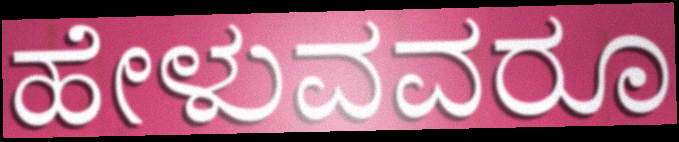
ಹೇಳುವವರೂ